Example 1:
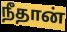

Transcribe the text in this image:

நீதான்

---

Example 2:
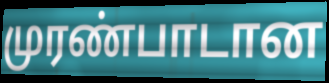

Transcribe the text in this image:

முரண்பாடான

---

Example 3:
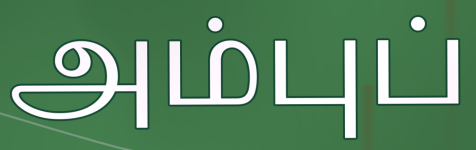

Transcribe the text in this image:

அம்புப்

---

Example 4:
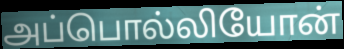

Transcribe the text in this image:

அப்பொல்லியோன்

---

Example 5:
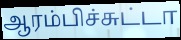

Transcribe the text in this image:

ஆரம்பிச்சுட்டா